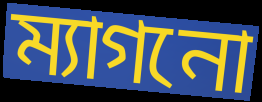
ম্যাগনো